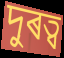
দুৰত্ব